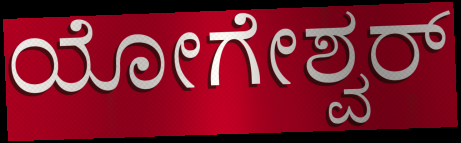
ಯೋಗೇಶ್ವರ್